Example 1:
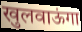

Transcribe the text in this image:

खुलवाऊंगा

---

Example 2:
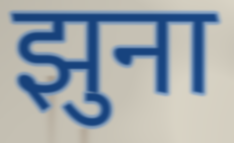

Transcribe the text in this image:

झुना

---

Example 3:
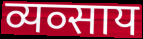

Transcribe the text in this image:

व्यव्साय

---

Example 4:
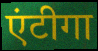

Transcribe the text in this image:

एंटीगा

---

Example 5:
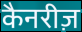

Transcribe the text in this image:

कैनरीज़